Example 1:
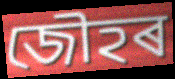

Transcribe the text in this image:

জৌহৰ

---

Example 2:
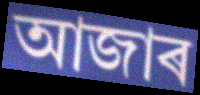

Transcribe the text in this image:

আজাৰ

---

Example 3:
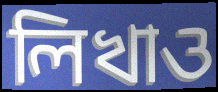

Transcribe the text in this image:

লিখাও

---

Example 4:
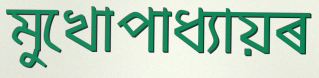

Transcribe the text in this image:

মুখোপাধ্যায়ৰ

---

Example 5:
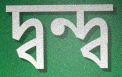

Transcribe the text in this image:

দ্বন্দ্ব